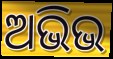
ଅଭିଭ